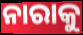
ନାରାକୁ